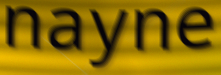
nayne